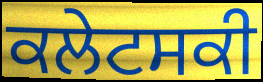
ਕਲੇਟਸਕੀ